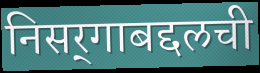
निसर्गाबद्दलची